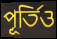
পূর্তিও